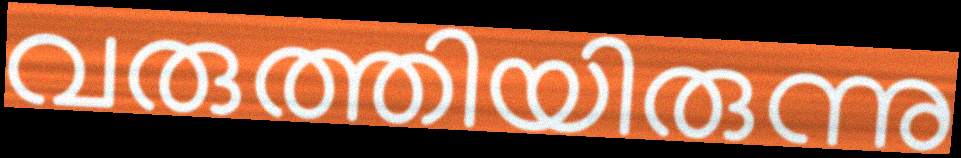
വരുത്തിയിരുന്നു